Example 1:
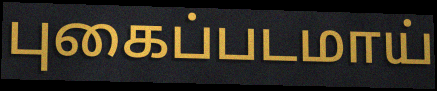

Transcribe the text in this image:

புகைப்படமாய்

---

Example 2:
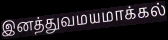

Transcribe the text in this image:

இனத்துவமயமாக்கல்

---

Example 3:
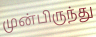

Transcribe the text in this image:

முன்பிருந்து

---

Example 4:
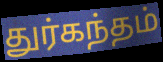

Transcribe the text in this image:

துர்கந்தம்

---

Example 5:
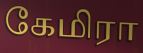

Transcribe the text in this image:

கேமிரா